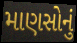
માણસોનું